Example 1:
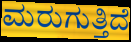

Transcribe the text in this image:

ಮರುಗುತ್ತಿದೆ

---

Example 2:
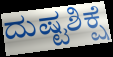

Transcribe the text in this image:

ದುಷ್ಟಶಿಕ್ಷೆ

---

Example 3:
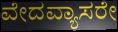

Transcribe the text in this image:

ವೇದವ್ಯಾಸರೇ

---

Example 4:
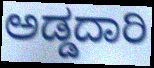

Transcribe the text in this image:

ಅಡ್ಡದಾರಿ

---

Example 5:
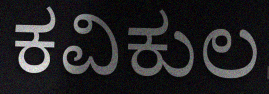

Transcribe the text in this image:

ಕವಿಕುಲ